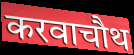
करवाचौथ